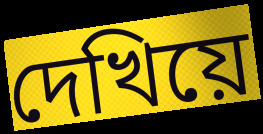
দেখিয়ে